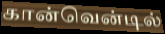
கான்வென்டில்